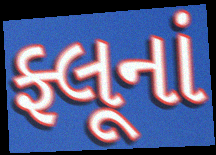
ફ્લૂનાં